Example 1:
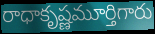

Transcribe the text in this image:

రాధాకృష్ణమూర్తిగారు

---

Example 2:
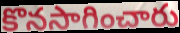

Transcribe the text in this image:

కొనసాగించారు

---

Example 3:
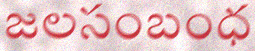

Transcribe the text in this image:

జలసంబంధ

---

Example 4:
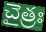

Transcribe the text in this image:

చైత్రః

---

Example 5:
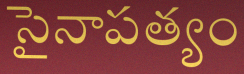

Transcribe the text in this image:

సైనాపత్యం